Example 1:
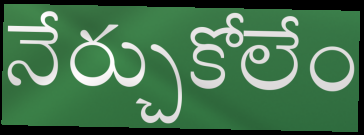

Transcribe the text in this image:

నేర్చుకోలేం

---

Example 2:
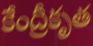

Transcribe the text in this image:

కేంద్రీకృత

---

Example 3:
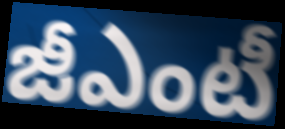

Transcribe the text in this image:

జీఎంటీ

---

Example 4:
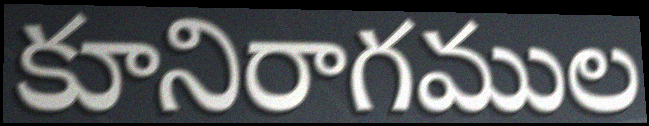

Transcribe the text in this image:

కూనిరాగముల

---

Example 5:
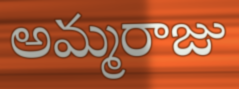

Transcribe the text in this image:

అమ్మరాజు